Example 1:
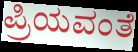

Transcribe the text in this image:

ಪ್ರಿಯವಂತೆ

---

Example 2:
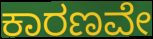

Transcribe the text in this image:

ಕಾರಣವೇ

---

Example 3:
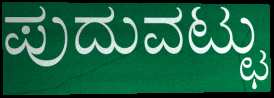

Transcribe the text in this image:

ಪುದುವಟ್ಟು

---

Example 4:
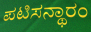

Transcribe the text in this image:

ಪಟಿಸನ್ಥಾರಂ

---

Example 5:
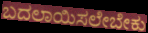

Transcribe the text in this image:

ಬದಲಾಯಿಸಲೇಬೇಕು